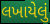
લખાયેલું